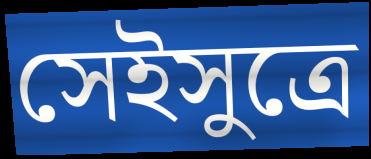
সেইসুত্রে